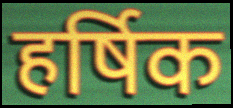
हर्षिक